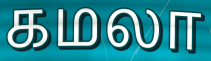
கமலா